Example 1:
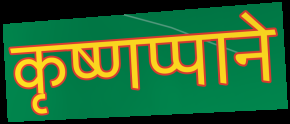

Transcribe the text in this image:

कृष्णप्पाने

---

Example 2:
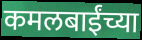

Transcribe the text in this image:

कमलबाईंच्या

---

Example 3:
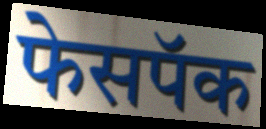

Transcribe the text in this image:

फेसपॅक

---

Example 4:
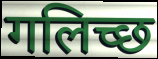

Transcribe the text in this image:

गलिच्छ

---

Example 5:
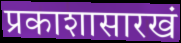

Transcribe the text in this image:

प्रकाशासारखं